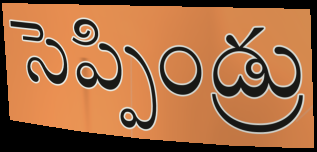
సెప్పిండ్రు